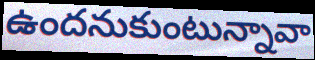
ఉందనుకుంటున్నావా